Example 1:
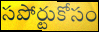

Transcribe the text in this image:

సపోర్టుకోసం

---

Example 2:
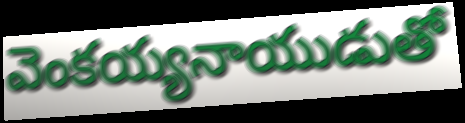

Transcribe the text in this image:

వెంకయ్యనాయుడుతో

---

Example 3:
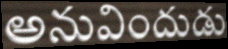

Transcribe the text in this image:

అనువిందుడు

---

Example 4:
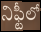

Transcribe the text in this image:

నిఫ్టీలో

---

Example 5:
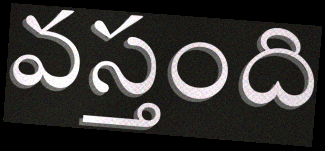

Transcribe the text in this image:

వస్తంది